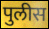
पुलीस